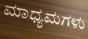
ಮಾಧ್ಯಮಗಳು